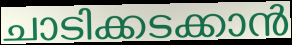
ചാടിക്കടക്കാൻ